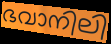
ഭവാനിലി